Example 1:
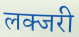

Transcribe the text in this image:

लक्जरी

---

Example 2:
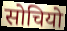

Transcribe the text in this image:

सोचियो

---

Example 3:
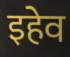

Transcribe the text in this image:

इहेव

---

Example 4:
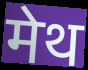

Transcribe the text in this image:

मेथ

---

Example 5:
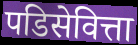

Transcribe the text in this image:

पडिसेवित्ता